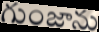
గుంజాను